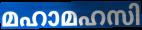
മഹാമഹസി